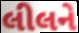
લીલને